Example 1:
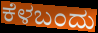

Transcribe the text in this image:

ಕೆಳಬಂದು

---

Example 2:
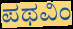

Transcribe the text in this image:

ಪಥವಿಂ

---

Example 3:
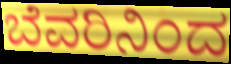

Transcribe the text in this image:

ಬೆವರಿನಿಂದ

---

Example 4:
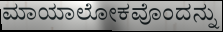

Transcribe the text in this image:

ಮಾಯಾಲೋಕವೊಂದನ್ನು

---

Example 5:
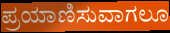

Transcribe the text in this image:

ಪ್ರಯಾಣಿಸುವಾಗಲೂ